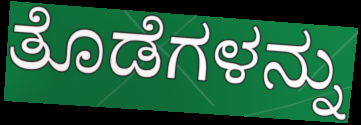
ತೊಡೆಗಳನ್ನು